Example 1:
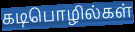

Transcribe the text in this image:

கடிபொழில்கள்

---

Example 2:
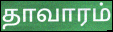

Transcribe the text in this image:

தாவாரம்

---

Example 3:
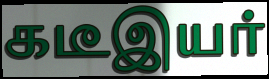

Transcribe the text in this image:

கடீஇயர்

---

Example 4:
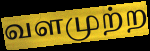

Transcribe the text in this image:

வளமுற்ற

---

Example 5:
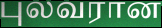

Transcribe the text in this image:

புலவரான